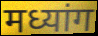
मध्यांग